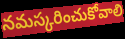
నమస్కరించుకోవాలి